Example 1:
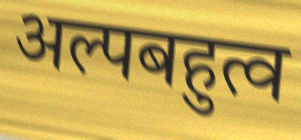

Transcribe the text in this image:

अल्पबहुत्व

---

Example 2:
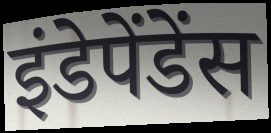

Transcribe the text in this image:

इंडेपेंडेंस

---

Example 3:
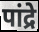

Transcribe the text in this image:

पांद्रे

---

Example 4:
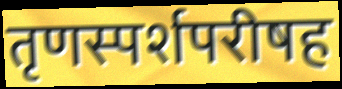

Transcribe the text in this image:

तृणस्पर्शपरीषह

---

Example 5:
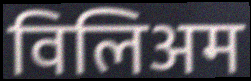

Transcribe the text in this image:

विलिअम